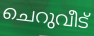
ചെറുവീട്